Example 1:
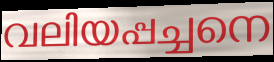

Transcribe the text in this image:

വലിയപ്പച്ചനെ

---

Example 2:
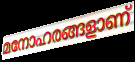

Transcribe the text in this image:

മനോഹരങ്ങളാണ്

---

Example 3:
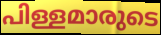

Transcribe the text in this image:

പിള്ളമാരുടെ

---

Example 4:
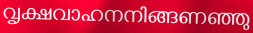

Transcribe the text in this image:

വൃക്ഷവാഹനനിങ്ങണഞ്ഞു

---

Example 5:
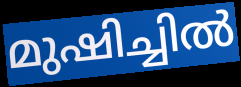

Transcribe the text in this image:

മുഷിച്ചിൽ